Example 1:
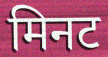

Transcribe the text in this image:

मिनट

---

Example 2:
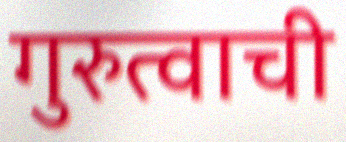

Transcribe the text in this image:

गुरुत्वाची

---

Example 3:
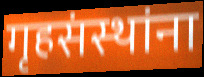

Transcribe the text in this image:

गृहसंस्थांना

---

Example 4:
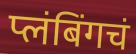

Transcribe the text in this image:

प्लंबिंगचं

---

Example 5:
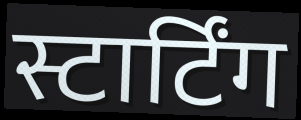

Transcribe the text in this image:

स्टार्टिंग